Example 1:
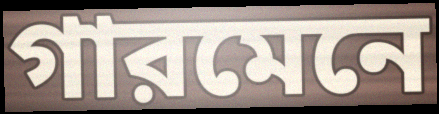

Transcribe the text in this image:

গারমেনে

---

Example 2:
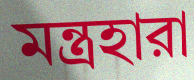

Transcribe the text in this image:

মন্ত্রহারা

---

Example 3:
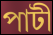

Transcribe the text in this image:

পাটী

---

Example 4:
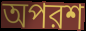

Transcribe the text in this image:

অপরশ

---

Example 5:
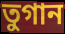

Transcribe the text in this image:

তুগান